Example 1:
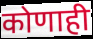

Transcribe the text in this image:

कोणाही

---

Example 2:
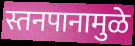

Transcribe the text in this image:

स्तनपानामुळे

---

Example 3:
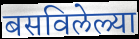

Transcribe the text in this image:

बसविलेल्या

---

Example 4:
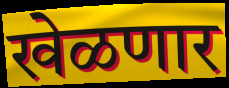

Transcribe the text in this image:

खेळणार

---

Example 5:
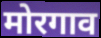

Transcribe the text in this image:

मोरगाव